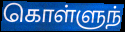
கொள்ளுந்